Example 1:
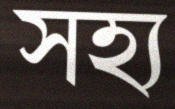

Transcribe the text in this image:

সহ্য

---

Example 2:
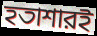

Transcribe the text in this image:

হতাশারই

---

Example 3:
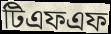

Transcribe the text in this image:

টিএফএফ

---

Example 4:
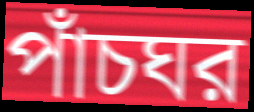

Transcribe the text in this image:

পাঁচঘর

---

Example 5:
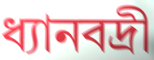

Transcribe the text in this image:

ধ্যানবদ্রী